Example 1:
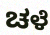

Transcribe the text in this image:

ಚಳೆ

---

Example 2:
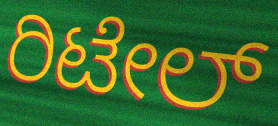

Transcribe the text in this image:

ರಿಟೇಲ್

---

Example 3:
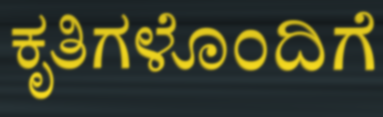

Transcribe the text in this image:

ಕೃತಿಗಳೊಂದಿಗೆ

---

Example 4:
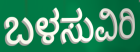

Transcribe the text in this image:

ಬಳಸುವಿರಿ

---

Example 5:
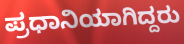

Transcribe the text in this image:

ಪ್ರಧಾನಿಯಾಗಿದ್ದರು